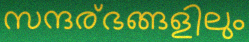
സന്ദര്ഭങ്ങളിലും